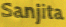
Sanjita